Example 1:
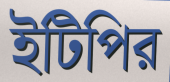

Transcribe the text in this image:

ইটিপির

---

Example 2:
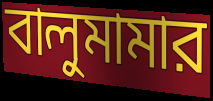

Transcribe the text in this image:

বালুমামার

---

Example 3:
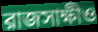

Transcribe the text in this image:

রাজসাক্ষীও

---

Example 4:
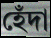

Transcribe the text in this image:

হেঁদা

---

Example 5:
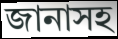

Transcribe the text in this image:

জানাসহ